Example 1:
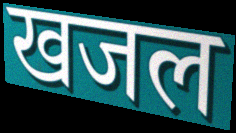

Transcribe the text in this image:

खजल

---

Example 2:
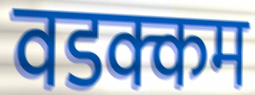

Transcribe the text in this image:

वडक्कम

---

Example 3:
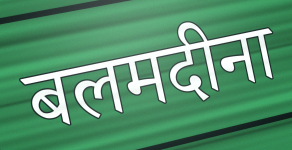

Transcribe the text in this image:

बलमदीना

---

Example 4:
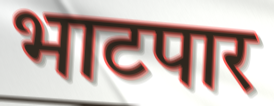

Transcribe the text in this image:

भाटपार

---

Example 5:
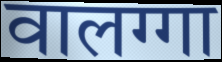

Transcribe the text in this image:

वालग्गा